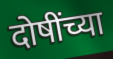
दोषींच्या